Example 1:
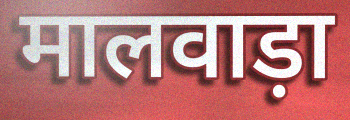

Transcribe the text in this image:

मालवाड़ा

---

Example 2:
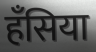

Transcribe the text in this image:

हँसिया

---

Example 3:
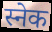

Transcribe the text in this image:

स्नेक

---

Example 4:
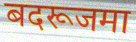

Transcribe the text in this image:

बदरूजमा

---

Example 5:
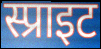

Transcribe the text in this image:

स्प्राइट